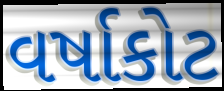
વર્ષાકોટ